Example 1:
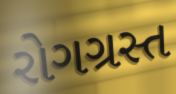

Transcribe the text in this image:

રોગગ્રસ્ત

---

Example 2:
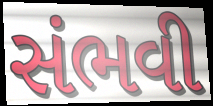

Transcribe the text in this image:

સંભવી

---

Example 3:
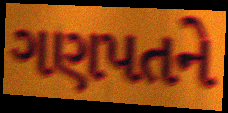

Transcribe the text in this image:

ગણપતને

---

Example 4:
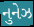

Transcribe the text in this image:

નુનેઝ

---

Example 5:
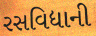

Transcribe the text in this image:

રસવિદ્યાની